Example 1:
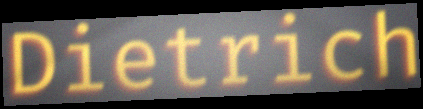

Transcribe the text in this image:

Dietrich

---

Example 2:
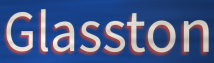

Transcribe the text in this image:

Glasston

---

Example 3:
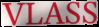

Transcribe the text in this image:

VLASS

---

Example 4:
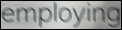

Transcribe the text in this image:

employing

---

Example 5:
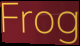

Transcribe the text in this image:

Frog